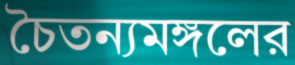
চৈতন্যমঙ্গলের